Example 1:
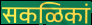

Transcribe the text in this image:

सकळिकां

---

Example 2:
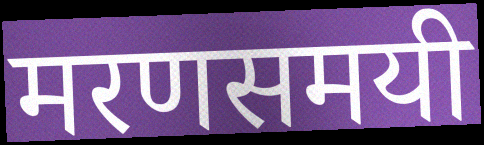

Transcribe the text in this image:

मरणसमयी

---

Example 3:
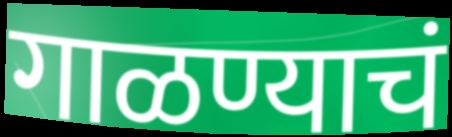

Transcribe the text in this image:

गाळण्याचं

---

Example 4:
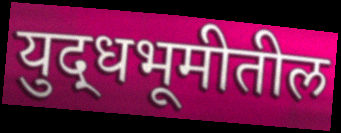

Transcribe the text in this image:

युद्धभूमीतील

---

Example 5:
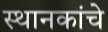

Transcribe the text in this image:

स्थानकांचे